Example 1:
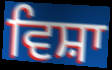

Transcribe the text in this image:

ਵਿਸ਼ਾ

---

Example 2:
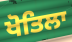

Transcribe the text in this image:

ਖੋਤਿਲਾ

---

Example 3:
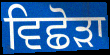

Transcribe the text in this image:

ਵਿਛੋੜਾ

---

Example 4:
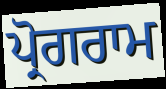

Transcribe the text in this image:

ਪ੍ਰੋਗਰਾਮ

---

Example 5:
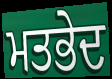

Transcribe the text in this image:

ਮਤਭੇਦ